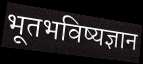
भूतभविष्यज्ञान